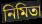
নিমিতা